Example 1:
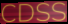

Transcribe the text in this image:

CDSS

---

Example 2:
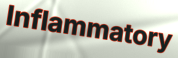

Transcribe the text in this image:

Inflammatory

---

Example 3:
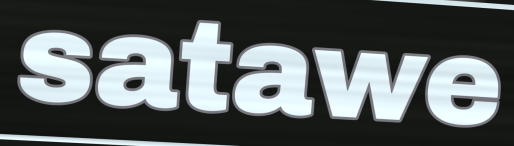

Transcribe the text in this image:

satawe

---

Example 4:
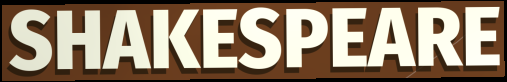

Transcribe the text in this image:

SHAKESPEARE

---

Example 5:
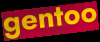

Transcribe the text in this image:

gentoo